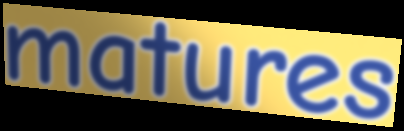
matures